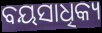
ବୟସାଧିକ୍ୟ